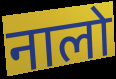
नालो